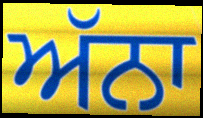
ਅੱਨਾ